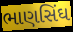
ભાણસિંઘ